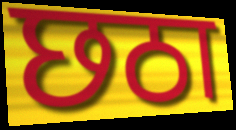
छठा